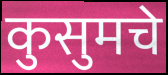
कुसुमचे